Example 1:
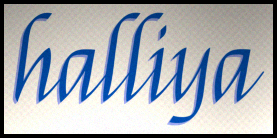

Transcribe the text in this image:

halliya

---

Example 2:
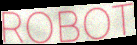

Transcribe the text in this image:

ROBOT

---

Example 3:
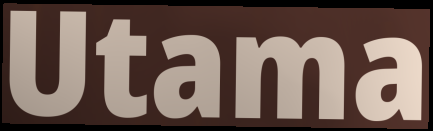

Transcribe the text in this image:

Utama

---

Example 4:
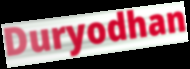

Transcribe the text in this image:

Duryodhan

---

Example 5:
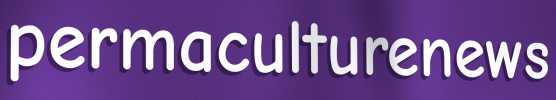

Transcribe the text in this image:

permaculturenews